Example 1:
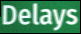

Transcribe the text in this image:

Delays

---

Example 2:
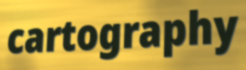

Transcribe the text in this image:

cartography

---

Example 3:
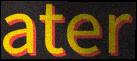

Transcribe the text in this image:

ater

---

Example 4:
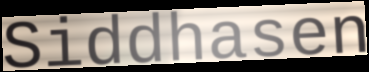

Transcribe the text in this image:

Siddhasen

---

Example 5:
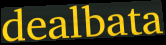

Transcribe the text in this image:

dealbata